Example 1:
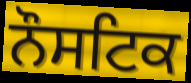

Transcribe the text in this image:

ਨੌਸਟਿਕ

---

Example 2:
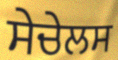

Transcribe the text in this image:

ਸੇਚੇਲਸ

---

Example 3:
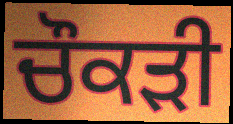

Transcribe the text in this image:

ਚੌਕੜੀ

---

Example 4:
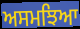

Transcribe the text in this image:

ਅਸਮਝਿਆ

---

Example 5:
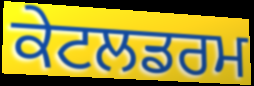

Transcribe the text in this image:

ਕੇਟਲਡਰਮ